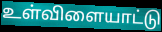
உள்விளையாட்டு